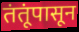
तंतूंपासून